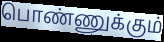
பொண்ணுக்கும்